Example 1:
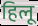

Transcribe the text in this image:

हिलू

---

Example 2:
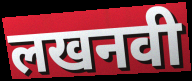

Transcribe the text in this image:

लखनवी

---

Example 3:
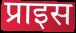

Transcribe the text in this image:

प्राइस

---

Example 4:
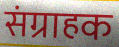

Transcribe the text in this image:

संग्राहक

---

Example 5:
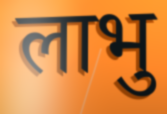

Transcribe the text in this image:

लाभु